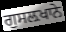
ਗੁਸਲ਼ਖਾਨੇ